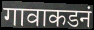
गावाकडनं